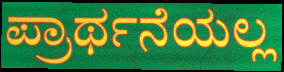
ಪ್ರಾರ್ಥನೆಯಲ್ಲ